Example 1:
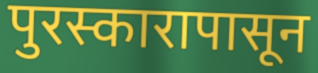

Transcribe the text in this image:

पुरस्कारापासून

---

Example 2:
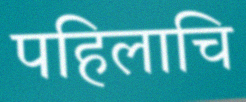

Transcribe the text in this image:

पहिलाचि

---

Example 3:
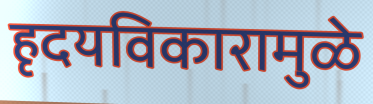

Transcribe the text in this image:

हृदयविकारामुळे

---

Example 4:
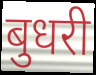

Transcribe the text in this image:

बुधरी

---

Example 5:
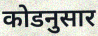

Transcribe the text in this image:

कोडनुसार